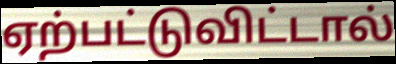
ஏற்பட்டுவிட்டால்